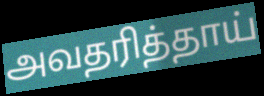
அவதரித்தாய்